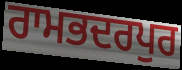
ਰਾਮਭਦਰਪੁਰ